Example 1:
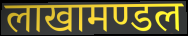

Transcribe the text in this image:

लाखामण्डल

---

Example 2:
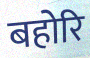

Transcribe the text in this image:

बहोरि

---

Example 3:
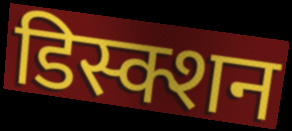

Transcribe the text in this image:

डिस्क्शन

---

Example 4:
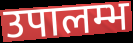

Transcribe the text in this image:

उपालम्भ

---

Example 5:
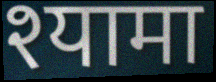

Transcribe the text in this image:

श्यामा